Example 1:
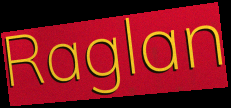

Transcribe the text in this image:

Raglan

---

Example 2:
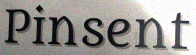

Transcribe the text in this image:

Pinsent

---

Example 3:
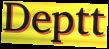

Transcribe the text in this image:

Deptt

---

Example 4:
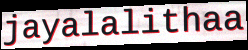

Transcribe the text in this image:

jayalalithaa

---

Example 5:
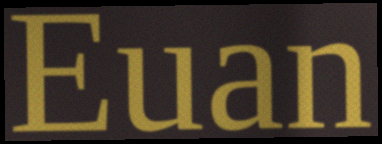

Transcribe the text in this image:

Euan